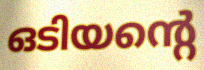
ഒടിയന്റെ